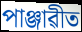
পাঞ্জাৱীত